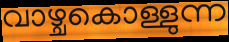
വാഴ്ചകൊള്ളുന്ന